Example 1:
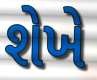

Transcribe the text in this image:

શેખે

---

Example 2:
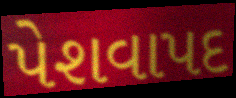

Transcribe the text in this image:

પેશવાપદ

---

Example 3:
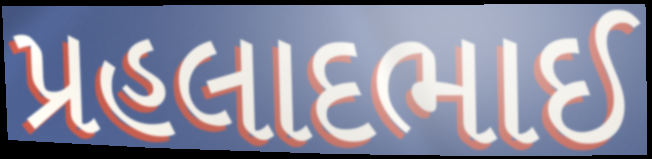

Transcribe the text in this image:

પ્રહલાદભાઈ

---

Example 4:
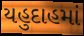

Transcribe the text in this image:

યહુદાહમાં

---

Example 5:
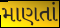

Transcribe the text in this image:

માણતાં